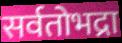
सर्वतोभद्रा